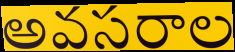
అవసరాల